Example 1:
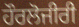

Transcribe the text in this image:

ਹੌਰਲੋਜੀਰੀ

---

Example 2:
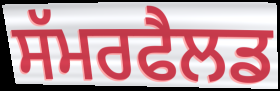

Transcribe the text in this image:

ਸੱਮਰਫੈਲਡ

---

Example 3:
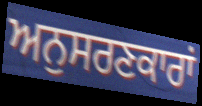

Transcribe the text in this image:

ਅਨੁਸਰਣਕਾਰਾਂ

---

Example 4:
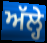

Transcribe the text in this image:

ਅੱਲ੍ਹੇ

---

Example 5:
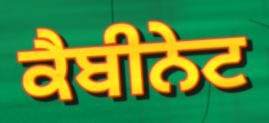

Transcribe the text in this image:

ਕੈਬੀਨੇਟ